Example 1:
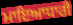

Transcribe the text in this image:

ਮਾਇਆਧਾਰੀ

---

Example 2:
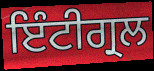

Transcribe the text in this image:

ਇੰਟੀਗ੍ਰਲ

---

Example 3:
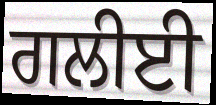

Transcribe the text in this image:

ਗਲੀਈ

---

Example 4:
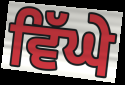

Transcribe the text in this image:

ਵਿੱਘੇ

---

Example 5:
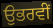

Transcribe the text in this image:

ਉਭਰਵੀਂ